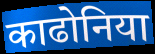
काढोनिया